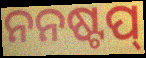
ନନଷ୍ଟପ୍